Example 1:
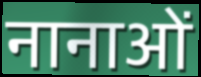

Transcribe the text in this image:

नानाओं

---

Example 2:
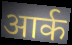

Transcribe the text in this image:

आर्क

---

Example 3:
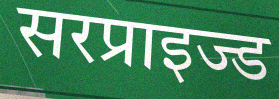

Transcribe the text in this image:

सरप्राइज्ड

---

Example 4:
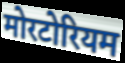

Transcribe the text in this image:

मोरटोरियम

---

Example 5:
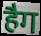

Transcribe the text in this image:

हैग